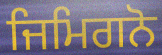
ਜਿਮਿਗਨੋ